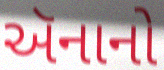
ઍનાનો